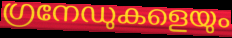
ഗ്രനേഡുകളെയും